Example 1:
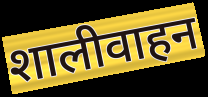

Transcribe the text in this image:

शालीवाहन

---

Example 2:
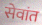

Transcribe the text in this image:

सेवांत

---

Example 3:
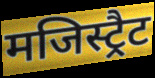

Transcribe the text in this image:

मजिस्ट्रैट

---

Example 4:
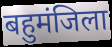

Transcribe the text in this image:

बहुमंजिला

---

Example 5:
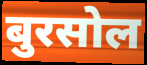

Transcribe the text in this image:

बुरसोल